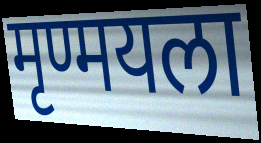
मृण्मयला